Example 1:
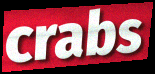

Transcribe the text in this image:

crabs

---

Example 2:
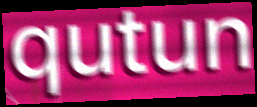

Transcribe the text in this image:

qutun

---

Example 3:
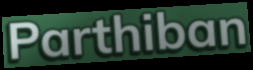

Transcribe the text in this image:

Parthiban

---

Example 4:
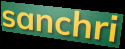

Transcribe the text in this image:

sanchri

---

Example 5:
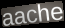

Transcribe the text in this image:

aache